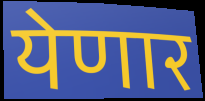
येणार